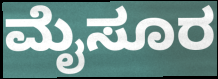
ಮೈಸೂರ